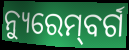
ନ୍ୟୁରେମ୍‌ବର୍ଗ